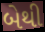
બેથી